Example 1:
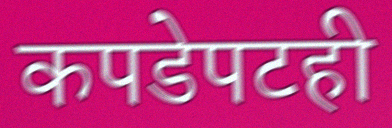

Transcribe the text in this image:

कपडेपटही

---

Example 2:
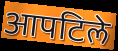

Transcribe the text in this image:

आपटिले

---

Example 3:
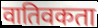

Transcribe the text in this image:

वातिवकता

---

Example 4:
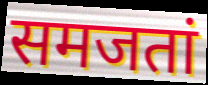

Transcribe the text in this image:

समजतां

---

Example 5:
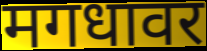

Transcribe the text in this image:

मगधावर